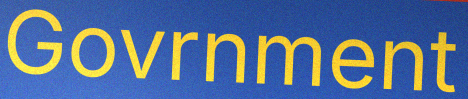
Govrnment